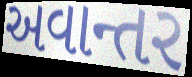
અવાન્તર